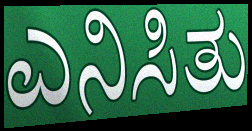
ಎನಿಸಿತು